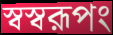
স্বস্বরূপং